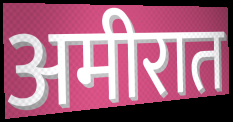
अमीरात